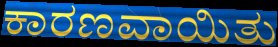
ಕಾರಣವಾಯಿತು